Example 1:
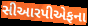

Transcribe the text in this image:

સીઆરપીએફના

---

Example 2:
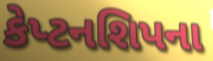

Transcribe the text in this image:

કેપ્ટનશિપના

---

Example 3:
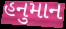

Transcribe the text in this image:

હનુમાન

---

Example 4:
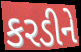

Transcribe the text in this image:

કરડીને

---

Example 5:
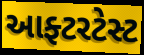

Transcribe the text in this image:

આફ્ટરટેસ્ટ